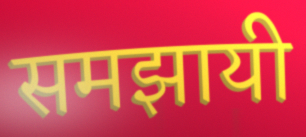
समझायी